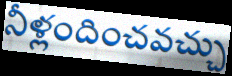
నీళ్లందించవచ్చు